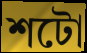
শটো